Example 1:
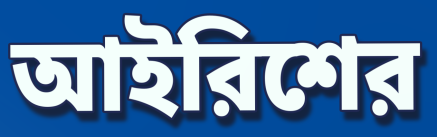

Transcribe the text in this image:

আইরিশের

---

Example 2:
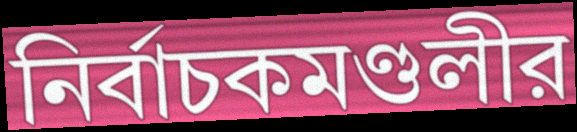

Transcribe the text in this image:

নির্বাচকমণ্ডলীর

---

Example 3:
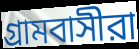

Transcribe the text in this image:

গ্রামবাসীরা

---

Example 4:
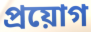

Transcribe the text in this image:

প্রয়োগ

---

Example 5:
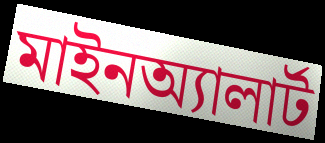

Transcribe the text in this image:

মাইনঅ্যালার্ট